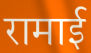
रामाई